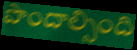
పొందాల్సింది